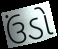
ઉંડો